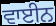
ਵਾਈਨ